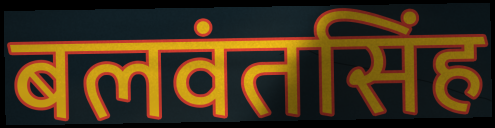
बलवंतसिंह